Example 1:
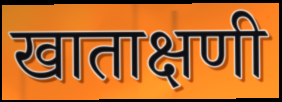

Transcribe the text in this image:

खाताक्षणी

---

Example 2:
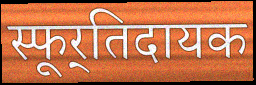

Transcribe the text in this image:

स्फूर्तिदायक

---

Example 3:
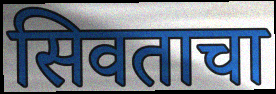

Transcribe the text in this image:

सिवताचा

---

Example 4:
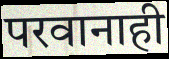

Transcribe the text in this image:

परवानाही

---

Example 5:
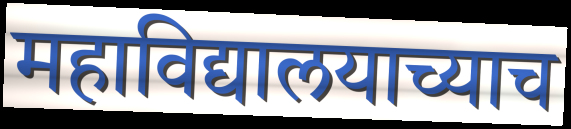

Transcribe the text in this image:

महाविद्यालयाच्याच